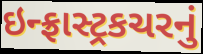
ઇન્ફ્રાસ્ટ્રકચરનું